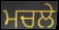
ਮਚਲੇ